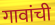
गावांची